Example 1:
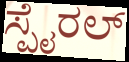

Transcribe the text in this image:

ಸ್ಪೈರಲ್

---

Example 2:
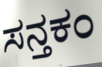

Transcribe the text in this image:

ಸನ್ತಕಂ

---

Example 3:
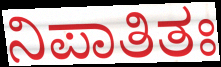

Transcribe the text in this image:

ನಿಪಾತಿತಃ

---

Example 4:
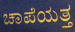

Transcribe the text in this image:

ಚಾಪೆಯತ್ತ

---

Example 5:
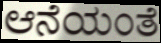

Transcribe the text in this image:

ಆನೆಯಂತೆ